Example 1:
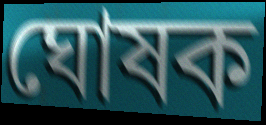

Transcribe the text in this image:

ঘোষক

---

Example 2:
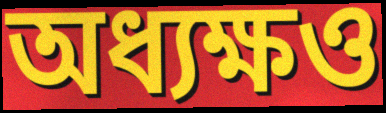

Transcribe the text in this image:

অধ্যক্ষও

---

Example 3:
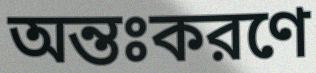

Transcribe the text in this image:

অন্তঃকরণে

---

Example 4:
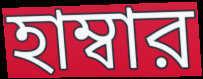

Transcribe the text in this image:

হাম্বার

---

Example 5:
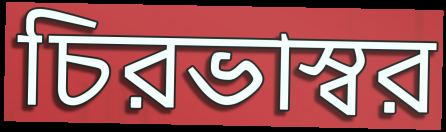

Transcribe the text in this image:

চিরভাস্বর